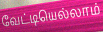
வேட்டியெல்லாம்